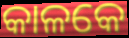
କାଳକେ